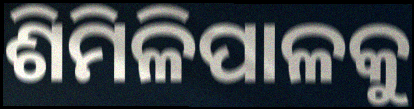
ଶିମିଳିପାଳକୁ